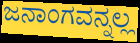
ಜನಾಂಗವನ್ನಲ್ಲ